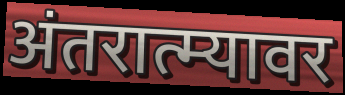
अंतरात्म्यावर